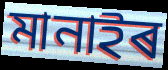
মানাইৰ